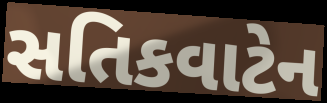
સતિકવાટેન